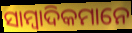
ସାମ୍ବାଦିକମାନେ